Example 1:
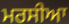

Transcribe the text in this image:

ਮਰਸੀਆ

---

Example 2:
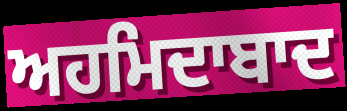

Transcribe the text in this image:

ਅਹਮਿਦਾਬਾਦ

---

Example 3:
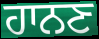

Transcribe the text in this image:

ਹਾਨਣ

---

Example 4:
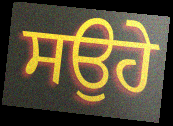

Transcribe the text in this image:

ਸਉਹੇ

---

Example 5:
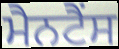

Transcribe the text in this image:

ਮੈਨਟੈਂਸ